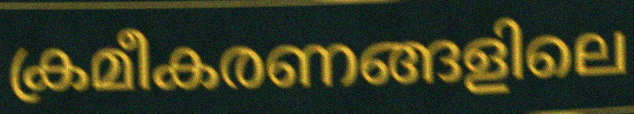
ക്രമീകരണങ്ങളിലെ